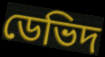
ডেভিদ